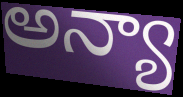
అన్యా